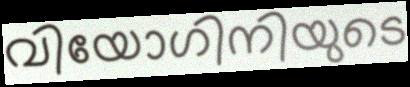
വിയോഗിനിയുടെ